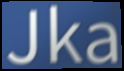
Jka